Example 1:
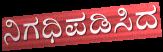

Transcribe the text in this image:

ನಿಗಧಿಪಡಿಸಿದ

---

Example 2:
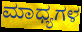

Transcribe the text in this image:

ಮಾಧ್ಯಗಳ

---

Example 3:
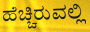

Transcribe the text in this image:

ಹೆಚ್ಚಿರುವಲ್ಲಿ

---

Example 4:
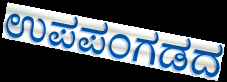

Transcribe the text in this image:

ಉಪಪಂಗಡದ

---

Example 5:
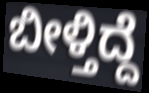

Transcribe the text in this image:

ಬೀಳ್ತಿದ್ದೆ